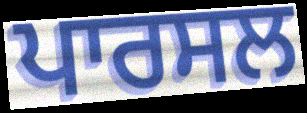
ਪਾਰਸਲ